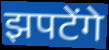
झपटेंगे